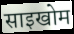
साइखोम